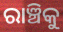
ରାଞ୍ଚିକୁ